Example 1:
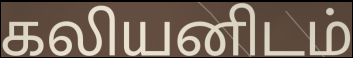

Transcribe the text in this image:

கலியனிடம்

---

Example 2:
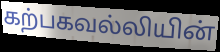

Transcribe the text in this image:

கற்பகவல்லியின்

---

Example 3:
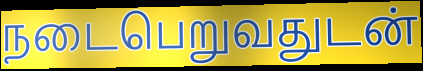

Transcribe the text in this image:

நடைபெறுவதுடன்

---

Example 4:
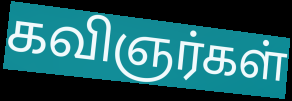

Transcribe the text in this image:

கவிஞர்கள்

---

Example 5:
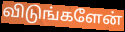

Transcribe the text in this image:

விடுங்களேன்